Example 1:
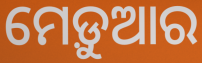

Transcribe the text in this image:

ମେଡ଼ୁଆର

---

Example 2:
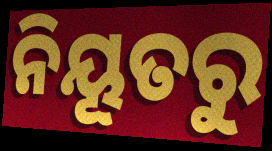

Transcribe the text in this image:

ନିୟୂତରୁ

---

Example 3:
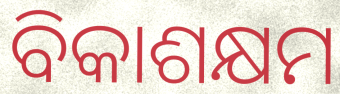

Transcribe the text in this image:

ବିକାଶକ୍ଷମ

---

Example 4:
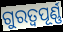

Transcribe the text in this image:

ଗୁରତ୍ୱପୂର୍ଣ୍ଣ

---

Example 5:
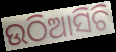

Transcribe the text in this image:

ଉଠିଆସିଚି